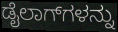
ಡೈಲಾಗ್‌ಗಳನ್ನು